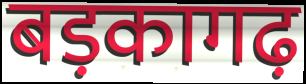
बड़कागढ़